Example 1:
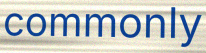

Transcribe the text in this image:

commonly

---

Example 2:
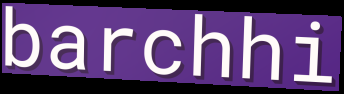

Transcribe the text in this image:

barchhi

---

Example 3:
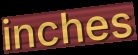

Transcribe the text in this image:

inches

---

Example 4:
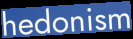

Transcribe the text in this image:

hedonism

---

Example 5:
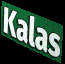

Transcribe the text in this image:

Kalas